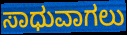
ಸಾಧುವಾಗಲು